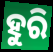
ହୁରି